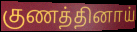
குணத்தினாய்